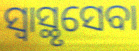
ସ୍ୱାସ୍ଥୃସେବା